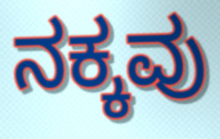
ನಕ್ಕವು